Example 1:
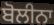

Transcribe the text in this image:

ਬੋਲੀਨਾ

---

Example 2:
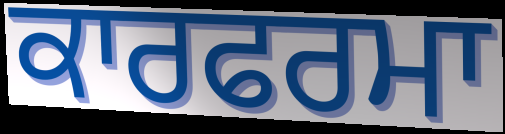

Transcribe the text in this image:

ਕਾਰਫਰਮਾ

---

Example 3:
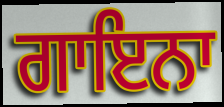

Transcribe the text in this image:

ਗਾਇਨਾ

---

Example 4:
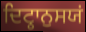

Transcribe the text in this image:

ਦਿਟ੍ਠਾਨੁਸਯਂ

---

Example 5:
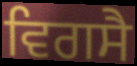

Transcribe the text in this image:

ਵਿਗਸੈ